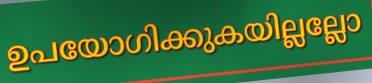
ഉപയോഗിക്കുകയില്ലല്ലോ